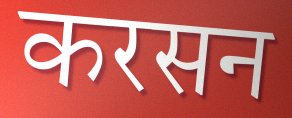
करसन